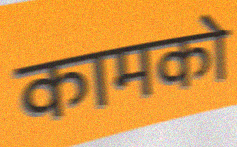
कामको